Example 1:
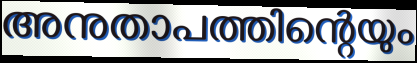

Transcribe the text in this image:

അനുതാപത്തിന്റെയും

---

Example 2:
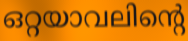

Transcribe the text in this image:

ഒറ്റയാവലിന്റെ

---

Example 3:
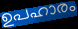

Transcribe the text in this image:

ഉപഹാരം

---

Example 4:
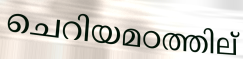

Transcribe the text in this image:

ചെറിയമഠത്തില്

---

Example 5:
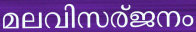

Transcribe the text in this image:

മലവിസര്ജനം